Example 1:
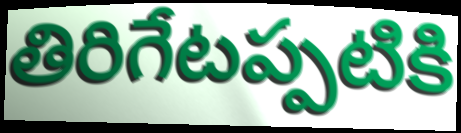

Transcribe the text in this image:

తిరిగేటప్పటికి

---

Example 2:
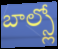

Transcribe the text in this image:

బాల్స్లో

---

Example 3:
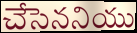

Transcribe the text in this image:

చేసెననియు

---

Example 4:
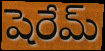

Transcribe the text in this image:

షెరేమ్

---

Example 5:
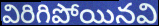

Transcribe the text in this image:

విరిగిపోయినవి